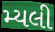
મ્યલી